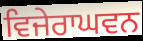
ਵਿਜੇਰਾਘਵਨ